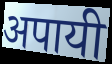
अपायी